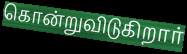
கொன்றுவிடுகிறார்